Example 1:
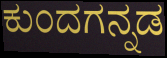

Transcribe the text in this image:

ಕುಂದಗನ್ನಡ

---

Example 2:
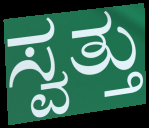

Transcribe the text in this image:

ಸ್ವತ್ತು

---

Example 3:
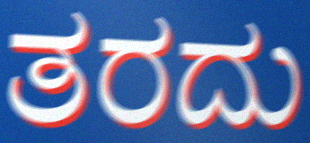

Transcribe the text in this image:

ತರದು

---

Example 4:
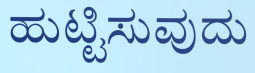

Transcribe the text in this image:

ಹುಟ್ಟಿಸುವುದು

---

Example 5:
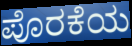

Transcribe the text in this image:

ಪೊರಕೆಯ